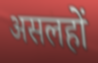
असलहों